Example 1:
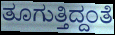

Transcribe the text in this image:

ತೂಗುತ್ತಿದ್ದಂತೆ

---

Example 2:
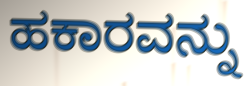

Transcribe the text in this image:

ಹಕಾರವನ್ನು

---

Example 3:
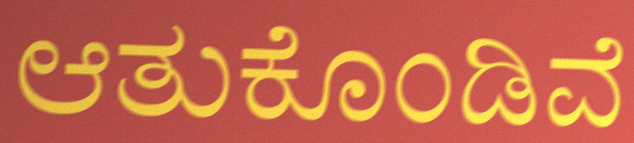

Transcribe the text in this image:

ಆತುಕೊಂಡಿವೆ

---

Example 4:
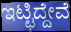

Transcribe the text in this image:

ಇಟ್ಟಿದ್ದೇವೆ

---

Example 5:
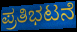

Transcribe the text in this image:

ಪ್ರತಿಭಟನೆ